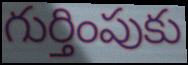
గుర్తింపుకు